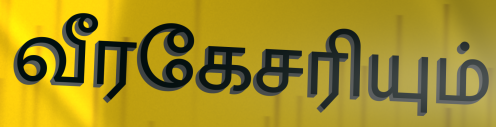
வீரகேசரியும்